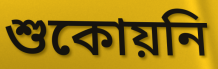
শুকোয়নি